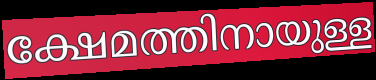
ക്ഷേമത്തിനായുള്ള